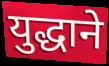
युद्धाने